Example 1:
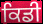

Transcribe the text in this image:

ਕਿਡੀ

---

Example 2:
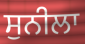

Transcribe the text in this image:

ਸੁਨੀਲਾ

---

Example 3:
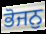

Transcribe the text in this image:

ਭੋਜਨੁ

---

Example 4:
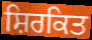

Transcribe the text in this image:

ਸ਼ਿਰਕਿਤ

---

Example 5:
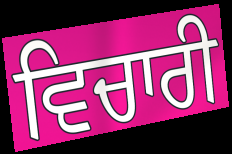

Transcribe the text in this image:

ਵਿਚਾਰੀ